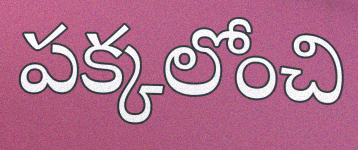
పక్కలోంచి